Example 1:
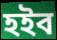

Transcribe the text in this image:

হইব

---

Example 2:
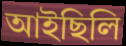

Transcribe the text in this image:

আইছিলি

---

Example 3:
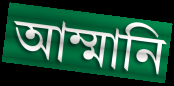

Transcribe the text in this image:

আম্মানি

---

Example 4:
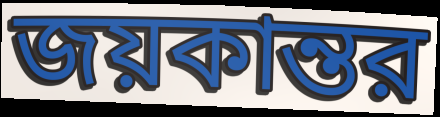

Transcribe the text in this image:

জয়কান্তর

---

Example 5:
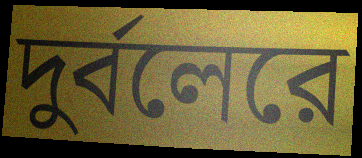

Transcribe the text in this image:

দুর্বলেরে